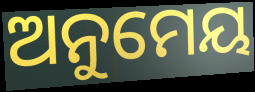
ଅନୁମେୟ